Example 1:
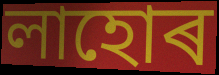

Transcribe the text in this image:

লাহোৰ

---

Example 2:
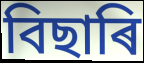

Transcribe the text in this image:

বিছাৰি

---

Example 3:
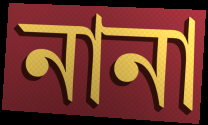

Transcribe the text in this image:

নানা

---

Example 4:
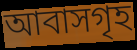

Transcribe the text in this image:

আবাসগৃহ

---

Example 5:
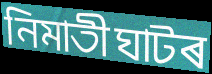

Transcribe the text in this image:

নিমাতীঘাটৰ